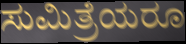
ಸುಮಿತ್ರೆಯರೂ